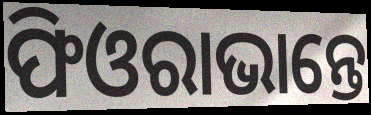
ଫିଓରାଭାନ୍ତେ